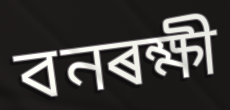
বনৰক্ষী